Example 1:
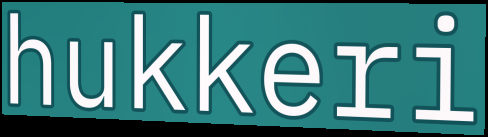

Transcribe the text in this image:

hukkeri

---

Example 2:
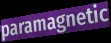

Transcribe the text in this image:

paramagnetic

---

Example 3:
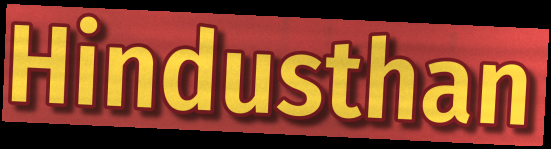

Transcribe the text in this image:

Hindusthan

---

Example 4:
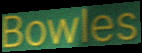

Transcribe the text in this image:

Bowles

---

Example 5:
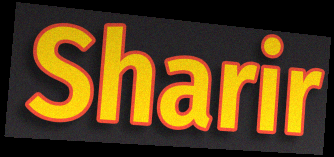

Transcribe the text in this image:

Sharir